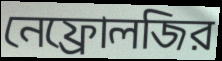
নেফ্রোলজির